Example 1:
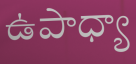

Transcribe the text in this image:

ఉపాధ్యా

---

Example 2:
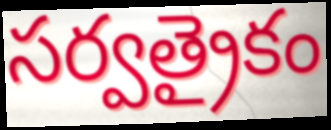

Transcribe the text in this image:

సర్వత్రైకం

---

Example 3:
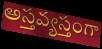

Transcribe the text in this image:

అస్తవ్యస్తంగా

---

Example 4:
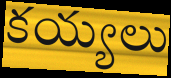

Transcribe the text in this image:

కయ్యలు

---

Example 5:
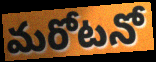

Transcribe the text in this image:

మరోటనో